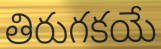
తిరుగకయే